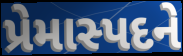
પ્રેમાસ્પદને